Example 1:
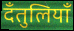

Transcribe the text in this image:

दँतुलियाँ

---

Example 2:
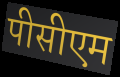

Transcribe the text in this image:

पीसीएम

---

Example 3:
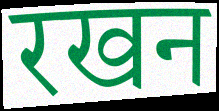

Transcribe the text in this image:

रखन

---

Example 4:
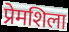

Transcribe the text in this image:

प्रेमशिला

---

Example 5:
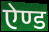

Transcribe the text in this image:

ऐण्ड